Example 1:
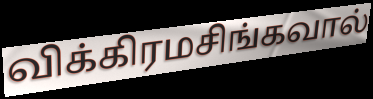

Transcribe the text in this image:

விக்கிரமசிங்கவால்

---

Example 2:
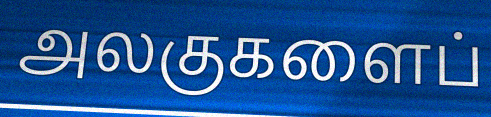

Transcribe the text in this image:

அலகுகளைப்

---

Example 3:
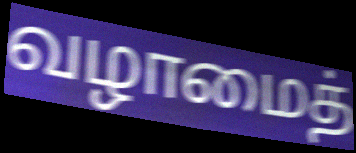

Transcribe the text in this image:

வழாமைத்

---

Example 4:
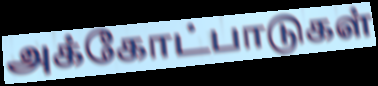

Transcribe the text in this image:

அக்கோட்பாடுகள்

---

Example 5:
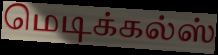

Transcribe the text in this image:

மெடிக்கல்ஸ்